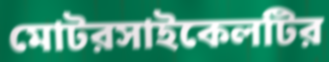
মোটরসাইকেলটির